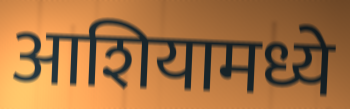
आशियामध्ये